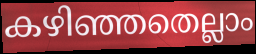
കഴിഞ്ഞതെല്ലാം